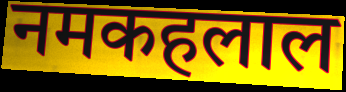
नमकहलाल